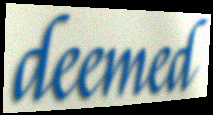
deemed